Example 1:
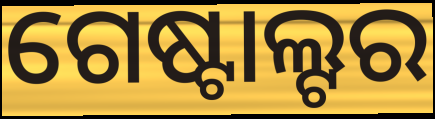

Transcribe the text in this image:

ଗେଷ୍ଟାଲ୍ଟର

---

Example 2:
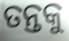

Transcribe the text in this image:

ତନ୍ତକୁ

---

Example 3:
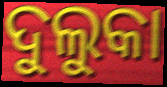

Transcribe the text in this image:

ଦୁଲୁକା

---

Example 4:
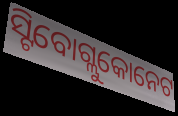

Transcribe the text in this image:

ସ୍ଟିବୋଗ୍ଲୁକୋନେଟ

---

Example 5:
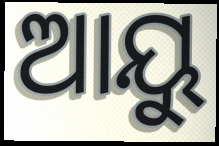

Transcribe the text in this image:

ଆୟୁ